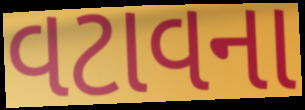
વટાવના